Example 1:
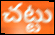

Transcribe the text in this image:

చట్టు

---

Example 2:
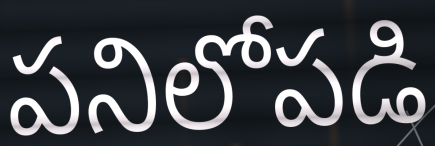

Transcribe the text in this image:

పనిలోపడి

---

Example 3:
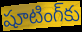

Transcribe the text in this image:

షూటింగ్‌కు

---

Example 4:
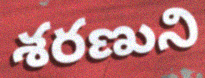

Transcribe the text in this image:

శరణుని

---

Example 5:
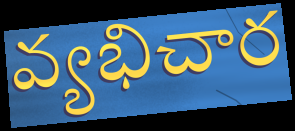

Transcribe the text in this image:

వ్యభిచార